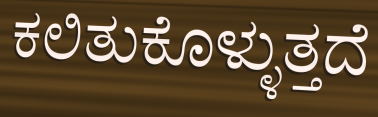
ಕಲಿತುಕೊಳ್ಳುತ್ತದೆ